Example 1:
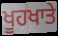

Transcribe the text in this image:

ਖੂਹਖਾਤੇ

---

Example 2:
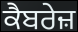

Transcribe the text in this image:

ਕੈਬਰੇਜ਼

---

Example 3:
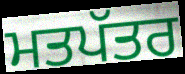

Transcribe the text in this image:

ਮਤਪੱਤਰ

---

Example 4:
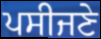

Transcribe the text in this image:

ਪਸੀਜਣੇ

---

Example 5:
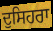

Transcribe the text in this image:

ਦੁਸਿਹਰਾ